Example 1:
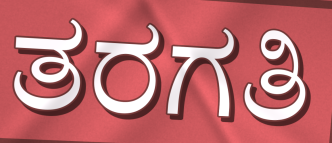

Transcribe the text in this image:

ತರಗತಿ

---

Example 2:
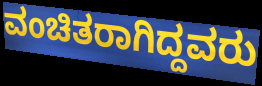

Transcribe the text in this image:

ವಂಚಿತರಾಗಿದ್ದವರು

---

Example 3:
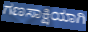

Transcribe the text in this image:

ಗಣಸಾಕ್ಷಿಯಾಗಿ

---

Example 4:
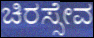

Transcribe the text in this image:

ಚಿರಸ್ಸೇವ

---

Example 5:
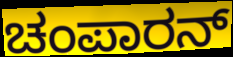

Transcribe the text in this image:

ಚಂಪಾರನ್